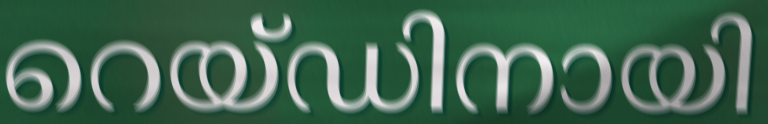
റെയ്ഡിനായി